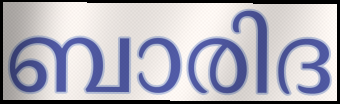
ബാരിദ